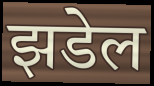
झडेल